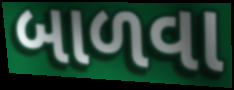
બાળવા